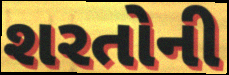
શરતોની